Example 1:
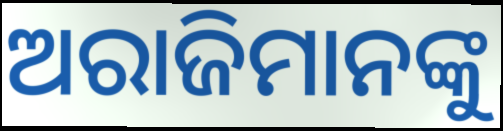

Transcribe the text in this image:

ଅରାଜିମାନଙ୍କୁ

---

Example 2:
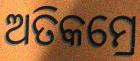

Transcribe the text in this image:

ଅତିକମ୍ରେ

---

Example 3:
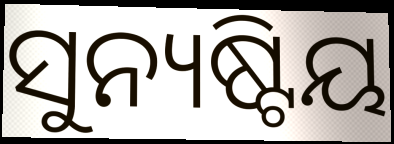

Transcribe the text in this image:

ସୁନ୍ୟଷ୍ଟିୟ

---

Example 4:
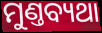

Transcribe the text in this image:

ମୁଣ୍ତବ୍ୟଥା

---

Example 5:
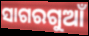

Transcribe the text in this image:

ସାଗରଗୁଆଁ